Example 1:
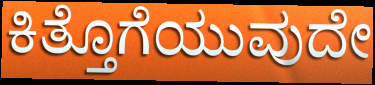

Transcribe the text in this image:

ಕಿತ್ತೊಗೆಯುವುದೇ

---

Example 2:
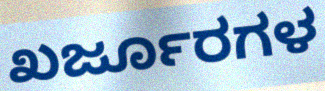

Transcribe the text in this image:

ಖರ್ಜೂರಗಳ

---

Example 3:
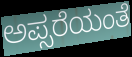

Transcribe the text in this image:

ಅಪ್ಸರೆಯಂತೆ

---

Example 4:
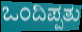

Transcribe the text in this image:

ಒಂದಿಪ್ಪತು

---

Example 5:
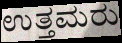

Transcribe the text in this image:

ಉತ್ತಮರು